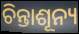
ଚିନ୍ତାଶୂନ୍ୟ